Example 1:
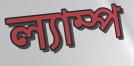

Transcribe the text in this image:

ল্যাম্প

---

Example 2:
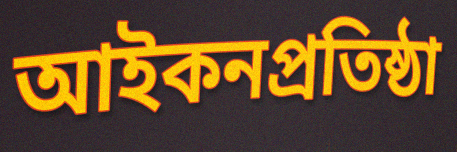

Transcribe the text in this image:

আইকনপ্রতিষ্ঠা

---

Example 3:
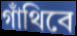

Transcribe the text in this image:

গাঁথিবে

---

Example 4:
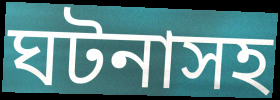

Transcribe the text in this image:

ঘটনাসহ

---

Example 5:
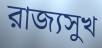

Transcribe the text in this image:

রাজ্যসুখ